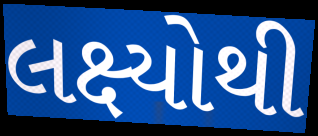
લક્ષ્યોથી